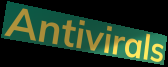
Antivirals